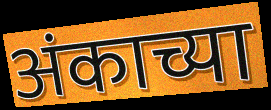
अंकाच्या